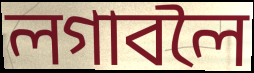
লগাবলৈ